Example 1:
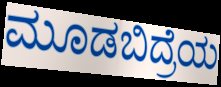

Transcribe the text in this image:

ಮೂಡಬಿದ್ರೆಯ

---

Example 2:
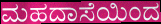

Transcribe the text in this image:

ಮಹದಾಸೆಯಿಂದ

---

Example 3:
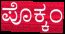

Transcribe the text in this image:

ಪೊಕ್ಕಂ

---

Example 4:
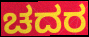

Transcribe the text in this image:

ಚದರ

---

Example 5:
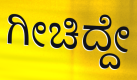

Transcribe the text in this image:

ಗೀಚಿದ್ದೇ